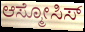
ಆಸ್ಮೋಸಿಸ್